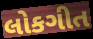
લોકગીત